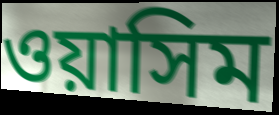
ওয়াসিম